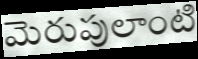
మెరుపులాంటి